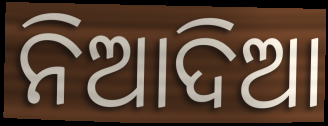
ନିଆଦିଆ